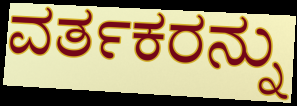
ವರ್ತಕರನ್ನು